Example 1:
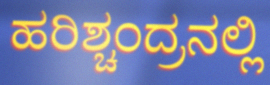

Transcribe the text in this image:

ಹರಿಶ್ಚಂದ್ರನಲ್ಲಿ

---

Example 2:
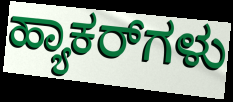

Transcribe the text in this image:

ಹ್ಯಾಕರ್‌ಗಳು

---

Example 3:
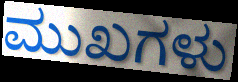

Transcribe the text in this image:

ಮುಖಗಳು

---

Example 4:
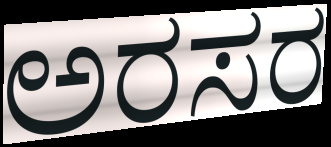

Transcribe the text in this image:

ಅರಸರ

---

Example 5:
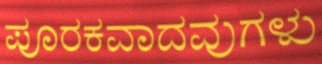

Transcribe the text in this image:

ಪೂರಕವಾದವುಗಳು